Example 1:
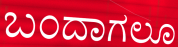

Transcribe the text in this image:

ಬಂದಾಗಲೂ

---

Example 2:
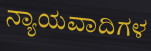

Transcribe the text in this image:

ನ್ಯಾಯವಾದಿಗಳ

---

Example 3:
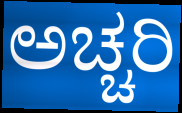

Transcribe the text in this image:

ಅಚ್ಚರಿ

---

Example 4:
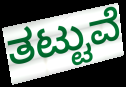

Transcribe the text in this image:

ತಟ್ಟುವೆ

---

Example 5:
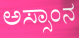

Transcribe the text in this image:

ಅಸ್ಸಾಂನ